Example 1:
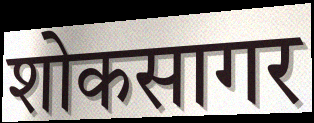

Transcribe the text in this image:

शोकसागर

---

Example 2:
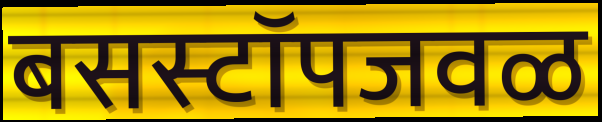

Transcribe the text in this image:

बसस्टॉपजवळ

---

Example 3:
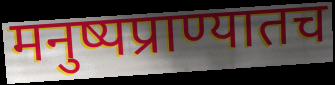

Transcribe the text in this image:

मनुष्यप्राण्यातच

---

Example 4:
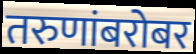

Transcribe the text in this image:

तरुणांबरोबर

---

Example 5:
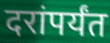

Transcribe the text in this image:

दरांपर्यंत